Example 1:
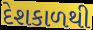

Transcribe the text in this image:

દેશકાળથી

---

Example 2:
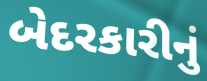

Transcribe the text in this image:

બેદરકારીનું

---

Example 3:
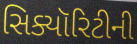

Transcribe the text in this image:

સિક્યૉરિટીની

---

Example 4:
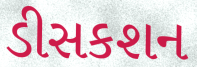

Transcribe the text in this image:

ડીસકશન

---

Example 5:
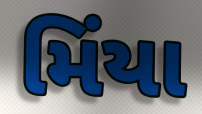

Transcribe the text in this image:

મિંયા